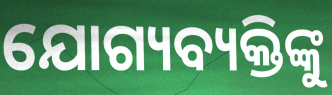
ଯୋଗ୍ୟବ୍ୟକ୍ତିଙ୍କୁ